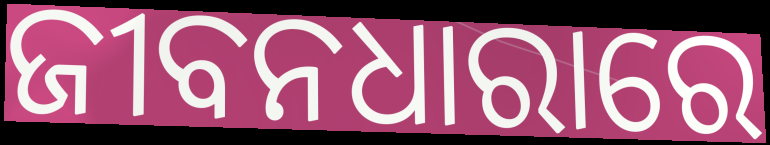
ଜୀବନଧାରାରେ